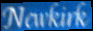
Newkirk